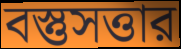
বস্তুসত্তার